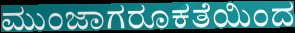
ಮುಂಜಾಗರೂಕತೆಯಿಂದ